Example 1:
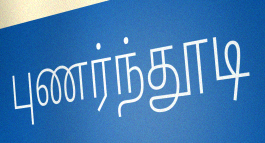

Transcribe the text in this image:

புணர்ந்தூடி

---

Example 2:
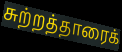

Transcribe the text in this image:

சுற்றத்தாரைக்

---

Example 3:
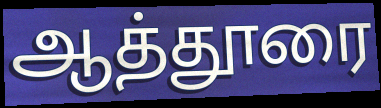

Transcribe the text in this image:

ஆத்தூரை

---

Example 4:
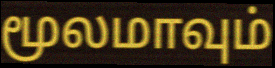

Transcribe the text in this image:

மூலமாவும்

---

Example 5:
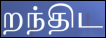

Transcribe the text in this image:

றந்திட